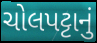
ચોલપટ્ટાનું